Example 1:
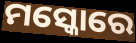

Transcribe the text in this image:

ମସ୍କୋରେ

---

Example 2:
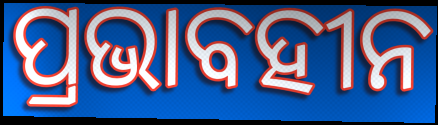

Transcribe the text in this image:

ପ୍ରଭାବହୀନ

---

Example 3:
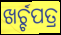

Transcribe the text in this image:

ଖର୍ଚ୍ଚପତ୍ର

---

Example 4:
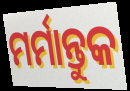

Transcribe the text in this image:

ମର୍ମାନ୍ତୁକ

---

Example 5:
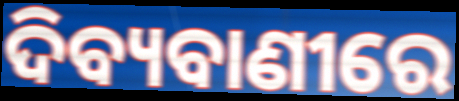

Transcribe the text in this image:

ଦିବ୍ୟବାଣୀରେ